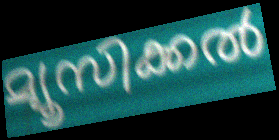
മ്യൂസിക്കൽ